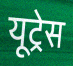
यूट्रेस